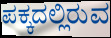
ಪಕ್ಕದಲ್ಲಿರುವ